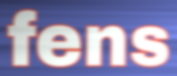
fens